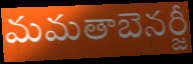
మమతాబెనర్జీ